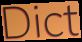
Dict